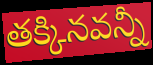
తక్కినవన్నీ